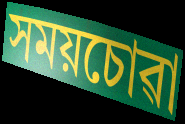
সময়চোৱা